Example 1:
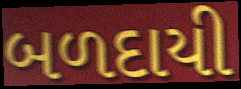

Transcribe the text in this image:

બળદાયી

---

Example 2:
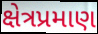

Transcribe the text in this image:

ક્ષેત્રપ્રમાણ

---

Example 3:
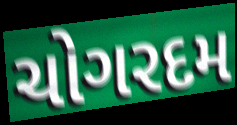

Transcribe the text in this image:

ચોગરદમ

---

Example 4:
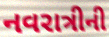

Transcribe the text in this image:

નવરાત્રીની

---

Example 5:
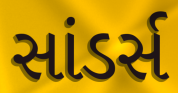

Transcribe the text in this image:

સાંડર્સ